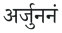
अर्जुननं